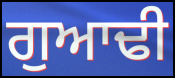
ਗੁਆਢੀ